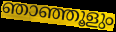
ഞാഞ്ഞൂളും